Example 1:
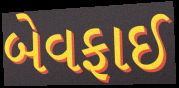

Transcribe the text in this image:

બેવફાઈ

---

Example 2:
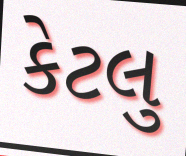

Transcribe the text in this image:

કેટલુ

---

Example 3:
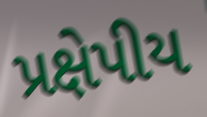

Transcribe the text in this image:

પ્રક્ષેપીય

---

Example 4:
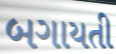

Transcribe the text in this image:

બગાયતી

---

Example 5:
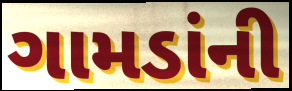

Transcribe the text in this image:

ગામડાંની